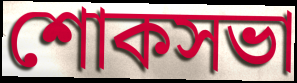
শোকসভা